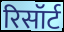
रिसॉर्ट